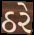
ઠરે